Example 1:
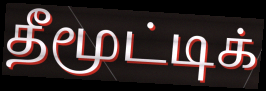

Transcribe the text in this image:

தீமூட்டிக்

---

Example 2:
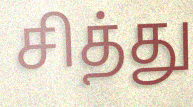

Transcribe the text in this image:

சித்து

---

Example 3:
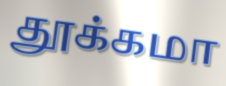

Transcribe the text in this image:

தூக்கமா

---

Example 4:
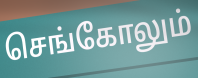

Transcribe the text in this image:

செங்கோலும்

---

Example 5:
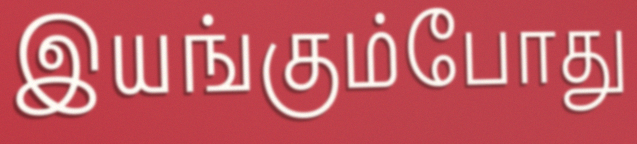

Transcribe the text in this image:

இயங்கும்போது